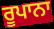
ਰੂਪਾਨਾ